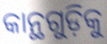
କାନ୍ଥଗୁଡ଼ିକୁ